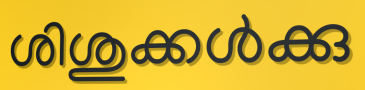
ശിശുക്കൾക്കു